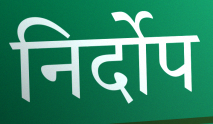
निर्दोप